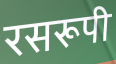
रसरूपी